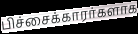
பிச்சைக்காரர்களாக